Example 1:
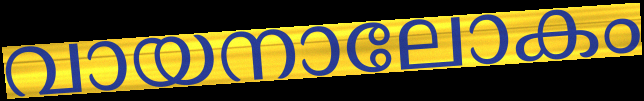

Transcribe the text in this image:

വായനാലോകം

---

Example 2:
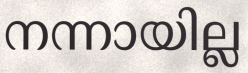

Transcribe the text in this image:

നന്നായില്ല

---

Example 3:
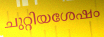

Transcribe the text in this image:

ചുറ്റിയശേഷം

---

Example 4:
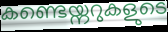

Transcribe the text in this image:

കണ്ടെയ്നറുകളുടെ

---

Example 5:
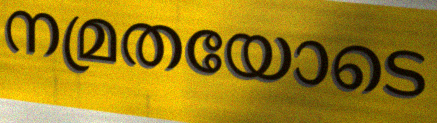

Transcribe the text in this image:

നമ്രതയോടെ